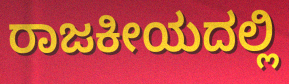
ರಾಜಕೀಯದಲ್ಲಿ